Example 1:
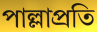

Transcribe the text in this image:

পাল্লাপ্রতি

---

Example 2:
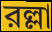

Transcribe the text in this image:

রল্লা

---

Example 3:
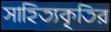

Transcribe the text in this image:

সাহিত্যকৃতির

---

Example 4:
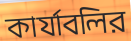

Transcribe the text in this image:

কার্যাবলির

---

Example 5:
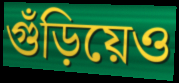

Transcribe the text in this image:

গুঁড়িয়েও